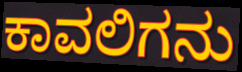
ಕಾವಲಿಗನು